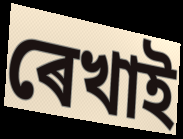
ৰেখাই